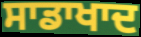
ਸਾਡਾਖਾਦ